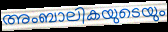
അംബാലികയുടെയും